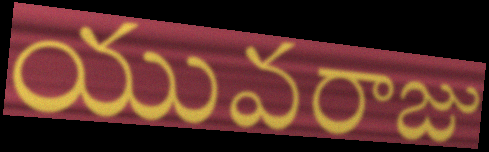
యువరాజు